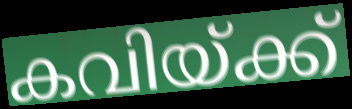
കവിയ്ക്ക്